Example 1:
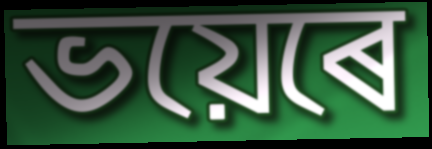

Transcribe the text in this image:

ভয়েৰে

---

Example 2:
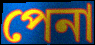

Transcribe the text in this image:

পেনা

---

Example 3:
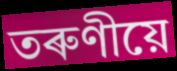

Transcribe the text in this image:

তৰুণীয়ে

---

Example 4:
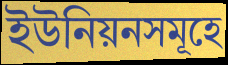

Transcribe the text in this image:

ইউনিয়নসমূহে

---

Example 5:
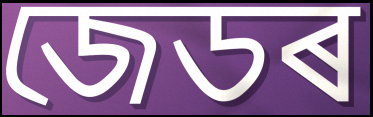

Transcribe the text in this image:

জেডৰ